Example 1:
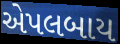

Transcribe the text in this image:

એપલબાય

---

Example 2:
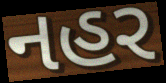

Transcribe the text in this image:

નહર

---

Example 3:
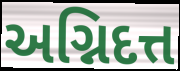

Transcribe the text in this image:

અગ્નિદત્ત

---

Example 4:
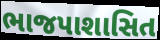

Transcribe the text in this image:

ભાજપાશાસિત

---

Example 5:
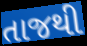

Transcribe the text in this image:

તાજથી